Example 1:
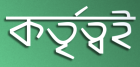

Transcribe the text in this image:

কর্তৃত্বই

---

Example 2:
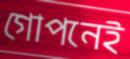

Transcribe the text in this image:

গোপনেই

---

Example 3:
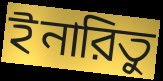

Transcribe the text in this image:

ইনারিতু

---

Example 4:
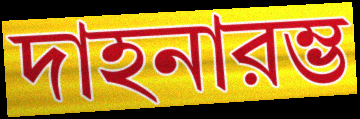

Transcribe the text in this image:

দাহনারম্ভ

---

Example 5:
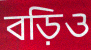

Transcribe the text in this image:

বড়িও